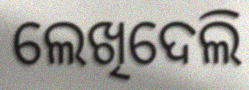
ଲେଖିଦେଲି